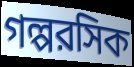
গল্পরসিক